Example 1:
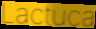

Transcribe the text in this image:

Lactuca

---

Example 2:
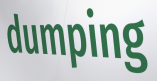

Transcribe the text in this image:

dumping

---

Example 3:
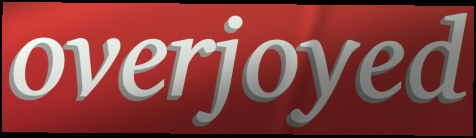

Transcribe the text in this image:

overjoyed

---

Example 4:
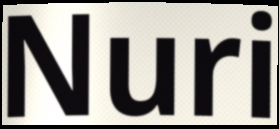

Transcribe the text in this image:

Nuri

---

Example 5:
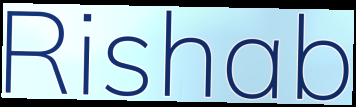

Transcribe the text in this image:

Rishab